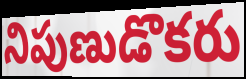
నిపుణుడొకరు